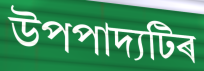
উপপাদ্যটিৰ